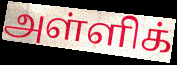
அள்ளிக்